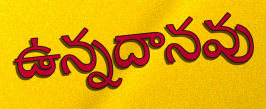
ఉన్నదానవు